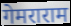
गेमराराम